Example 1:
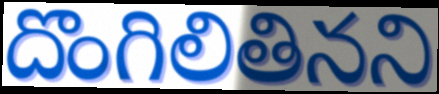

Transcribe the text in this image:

దొంగిలితినని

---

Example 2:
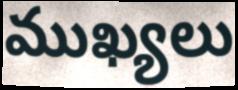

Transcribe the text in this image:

ముఖ్యలు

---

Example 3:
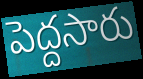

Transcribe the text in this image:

పెద్దసారు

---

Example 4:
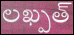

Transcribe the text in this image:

లఖ్పత్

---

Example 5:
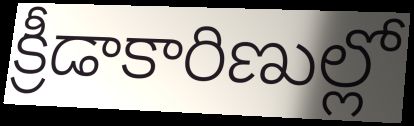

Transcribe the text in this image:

క్రీడాకారిణుల్లో